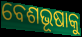
ବେଶଭୂଷାକୁ